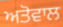
ਅਤੋਵਾਲ